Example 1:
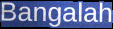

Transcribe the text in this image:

Bangalah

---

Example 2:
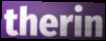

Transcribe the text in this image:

therin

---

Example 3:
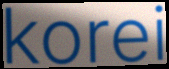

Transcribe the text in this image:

korei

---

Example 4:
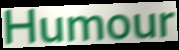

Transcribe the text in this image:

Humour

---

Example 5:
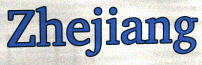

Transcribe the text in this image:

Zhejiang